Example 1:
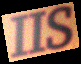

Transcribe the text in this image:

IIS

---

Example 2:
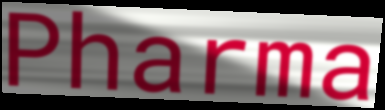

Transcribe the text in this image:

Pharma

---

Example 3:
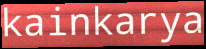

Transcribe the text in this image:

kainkarya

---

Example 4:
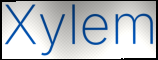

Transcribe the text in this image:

Xylem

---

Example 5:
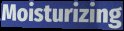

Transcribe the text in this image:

Moisturizing